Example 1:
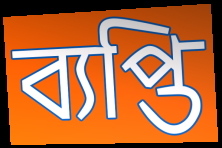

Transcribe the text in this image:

ব্যপ্তি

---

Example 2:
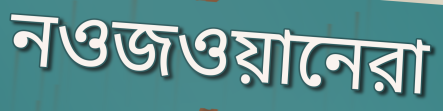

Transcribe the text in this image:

নওজওয়ানেরা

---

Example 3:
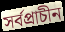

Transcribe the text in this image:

সর্বপ্রাচীন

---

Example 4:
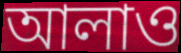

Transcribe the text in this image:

আলাও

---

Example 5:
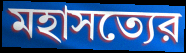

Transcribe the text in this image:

মহাসত্যের